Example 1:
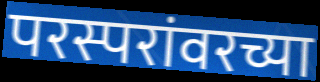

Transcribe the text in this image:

परस्परांवरच्या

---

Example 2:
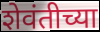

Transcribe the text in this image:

शेवंतीच्या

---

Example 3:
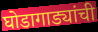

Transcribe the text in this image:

घोडागाड्यांची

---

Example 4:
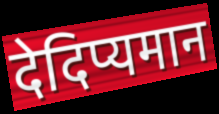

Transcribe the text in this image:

देदिप्यमान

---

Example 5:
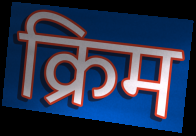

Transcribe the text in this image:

क्रिम